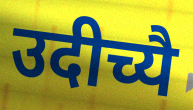
उदीच्यै